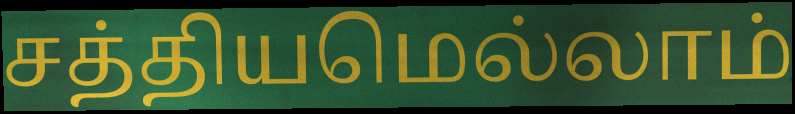
சத்தியமெல்லாம்